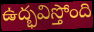
ఉద్భవిస్తోంది